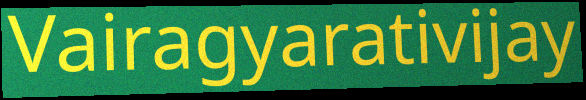
Vairagyarativijay